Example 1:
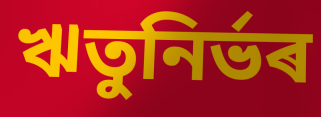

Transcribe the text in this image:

ঋতুনিৰ্ভৰ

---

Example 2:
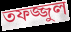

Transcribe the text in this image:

তফজ্জুল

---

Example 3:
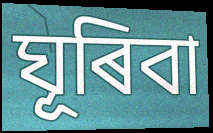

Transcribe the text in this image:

ঘূৰিবা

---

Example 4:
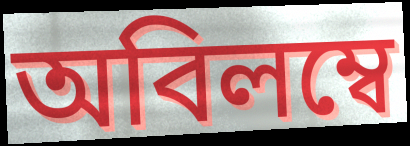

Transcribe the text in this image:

অবিলম্বে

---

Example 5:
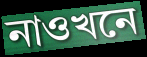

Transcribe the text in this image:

নাওখনে